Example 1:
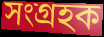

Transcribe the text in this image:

সংগ্ৰহক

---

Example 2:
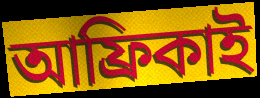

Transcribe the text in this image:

আফ্ৰিকাই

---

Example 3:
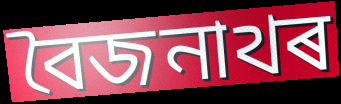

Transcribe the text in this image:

বৈজনাথৰ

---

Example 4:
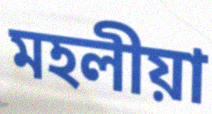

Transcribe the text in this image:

মহলীয়া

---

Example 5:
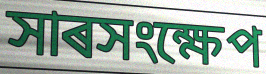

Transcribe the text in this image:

সাৰসংক্ষেপ